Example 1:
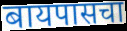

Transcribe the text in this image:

बायपासचा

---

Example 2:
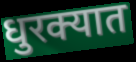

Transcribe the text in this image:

धुरक्यात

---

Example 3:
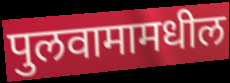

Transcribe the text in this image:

पुलवामामधील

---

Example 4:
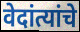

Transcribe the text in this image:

वेदांत्यांचे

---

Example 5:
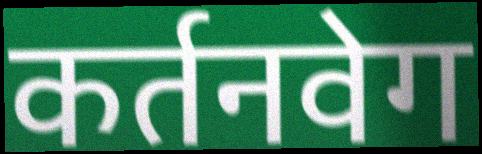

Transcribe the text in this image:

कर्तनवेग